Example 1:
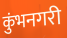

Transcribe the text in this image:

कुंभनगरी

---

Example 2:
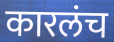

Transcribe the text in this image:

कारलंच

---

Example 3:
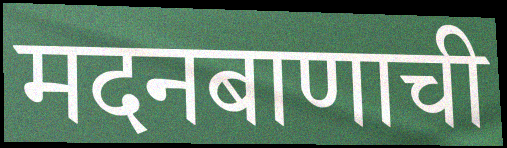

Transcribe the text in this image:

मदनबाणाची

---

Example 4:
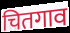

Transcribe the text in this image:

चितगाव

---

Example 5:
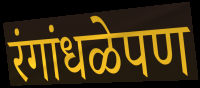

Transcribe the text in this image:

रंगांधळेपण